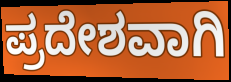
ಪ್ರದೇಶವಾಗಿ